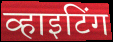
व्हाइटिंग